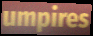
umpires